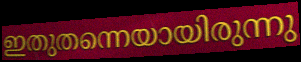
ഇതുതന്നെയായിരുന്നു